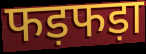
फड़फड़ा